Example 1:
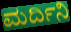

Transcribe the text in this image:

ಮರ್ದಿನಿ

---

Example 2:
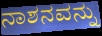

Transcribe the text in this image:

ನಾಶನವನ್ನು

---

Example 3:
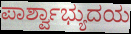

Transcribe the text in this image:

ಪಾರ್ಶ್ವಾಭ್ಯುದಯ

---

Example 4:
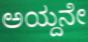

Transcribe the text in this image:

ಅಯ್ದನೇ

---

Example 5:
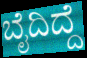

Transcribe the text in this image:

ಬೈದಿದ್ದೆ